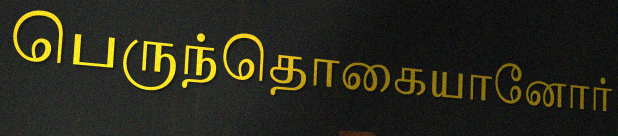
பெருந்தொகையானோர்